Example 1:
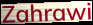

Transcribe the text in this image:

Zahrawi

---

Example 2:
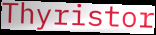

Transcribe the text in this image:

Thyristor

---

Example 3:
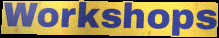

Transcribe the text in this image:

Workshops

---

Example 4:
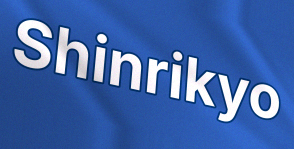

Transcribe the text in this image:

Shinrikyo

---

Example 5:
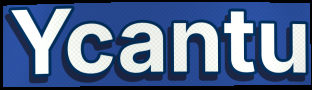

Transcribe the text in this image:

Ycantu